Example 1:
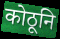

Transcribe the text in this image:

कोठूनि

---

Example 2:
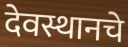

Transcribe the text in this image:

देवस्थानचे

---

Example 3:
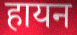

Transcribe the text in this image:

हायन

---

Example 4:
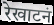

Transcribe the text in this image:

रेखाटनं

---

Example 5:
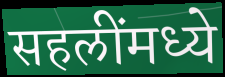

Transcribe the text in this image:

सहलींमध्ये